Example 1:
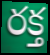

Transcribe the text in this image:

రక్త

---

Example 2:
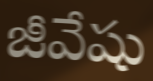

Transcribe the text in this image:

జీవేషు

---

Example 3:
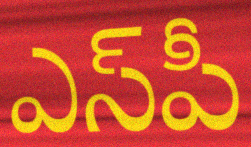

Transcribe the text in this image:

ఎస్‌పీ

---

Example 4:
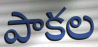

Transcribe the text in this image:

పాకల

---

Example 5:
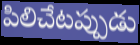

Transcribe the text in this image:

పిలిచేటప్పుడు